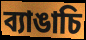
ব্যাঙাচি